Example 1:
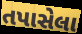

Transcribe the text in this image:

તપાસેલા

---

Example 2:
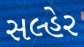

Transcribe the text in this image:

સલ્હેર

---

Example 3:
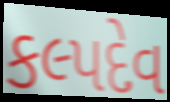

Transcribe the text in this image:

કલ્પદેવ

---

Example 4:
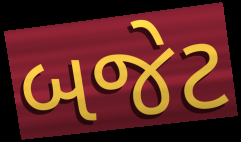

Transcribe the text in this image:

બજેટ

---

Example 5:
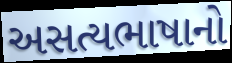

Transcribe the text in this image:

અસત્યભાષાનો